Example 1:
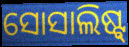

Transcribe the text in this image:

ସୋସାଲିଷ୍ଟ୍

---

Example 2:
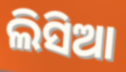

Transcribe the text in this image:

ଲିସିଆ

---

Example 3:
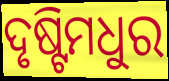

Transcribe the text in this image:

ଦୃଷ୍ଟିମଧୁର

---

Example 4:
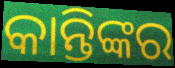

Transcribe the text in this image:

କାନ୍ତିଙ୍କର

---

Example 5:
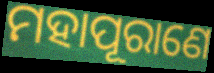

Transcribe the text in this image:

ମହାପୂରାଣେ